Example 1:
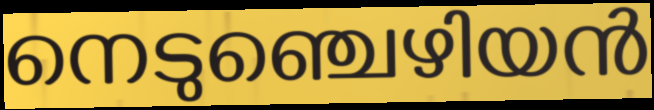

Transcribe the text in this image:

നെടുഞ്ചെഴിയൻ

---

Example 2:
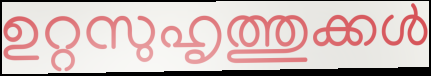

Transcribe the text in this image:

ഉറ്റസുഹൃത്തുക്കൾ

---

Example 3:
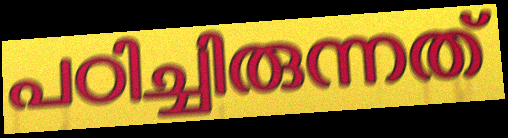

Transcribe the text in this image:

പഠിച്ചിരുന്നത്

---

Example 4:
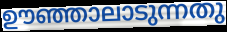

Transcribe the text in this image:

ഊഞ്ഞാലാടുന്നതു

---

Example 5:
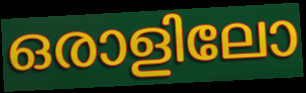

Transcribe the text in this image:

ഒരാളിലോ